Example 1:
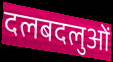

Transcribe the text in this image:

दलबदलुओं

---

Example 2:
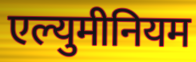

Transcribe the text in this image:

एल्युमीनियम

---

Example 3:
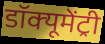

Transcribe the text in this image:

डॉक्‍यूमेंट्री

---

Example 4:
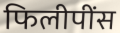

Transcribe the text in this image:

फिलीपींस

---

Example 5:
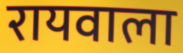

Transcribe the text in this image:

रायवाला